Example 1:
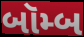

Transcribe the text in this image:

બૉમ્બ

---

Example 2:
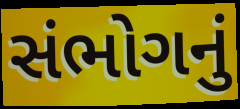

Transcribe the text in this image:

સંભોગનું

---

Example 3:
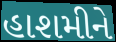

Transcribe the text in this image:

હાશમીને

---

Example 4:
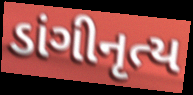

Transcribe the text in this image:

ડાંગીનૃત્ય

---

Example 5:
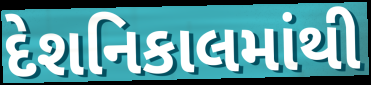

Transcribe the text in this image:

દેશનિકાલમાંથી